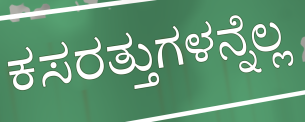
ಕಸರತ್ತುಗಳನ್ನೆಲ್ಲ